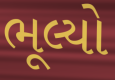
ભૂલ્યો